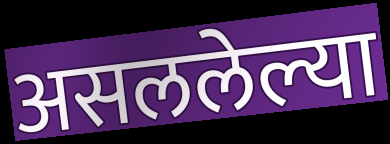
असललेल्या